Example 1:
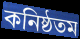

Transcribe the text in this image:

কনিষ্ঠতম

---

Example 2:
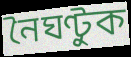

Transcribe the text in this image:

নৈঘণ্টুক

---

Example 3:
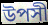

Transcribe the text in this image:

উপসী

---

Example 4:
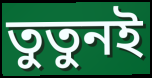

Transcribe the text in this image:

তুতুনই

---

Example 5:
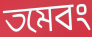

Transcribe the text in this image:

তমেবং